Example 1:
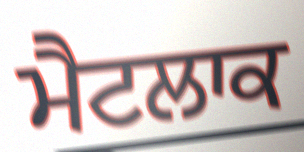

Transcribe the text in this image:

ਮੈਟਲਾਕ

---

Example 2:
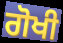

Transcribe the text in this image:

ਗੋਖੀ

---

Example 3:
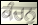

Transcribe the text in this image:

ਕੰਚਨੁ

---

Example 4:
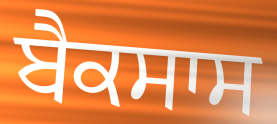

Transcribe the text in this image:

ਬੈਕਸਾਸ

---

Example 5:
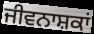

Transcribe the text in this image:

ਜੀਵਨਾਸ਼ਕਾਂ